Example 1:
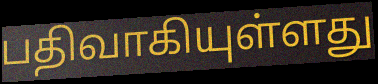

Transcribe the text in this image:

பதிவாகியுள்ளது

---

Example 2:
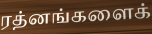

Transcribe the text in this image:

ரத்னங்களைக்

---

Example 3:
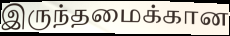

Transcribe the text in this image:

இருந்தமைக்கான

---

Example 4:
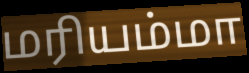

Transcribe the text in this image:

மரியம்மா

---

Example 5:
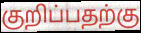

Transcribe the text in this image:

குறிப்பதற்கு